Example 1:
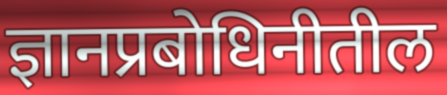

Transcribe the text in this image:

ज्ञानप्रबोधिनीतील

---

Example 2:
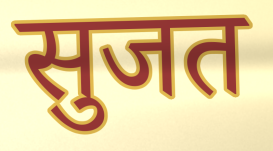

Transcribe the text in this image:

सुजत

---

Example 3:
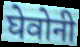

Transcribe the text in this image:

घेवोनी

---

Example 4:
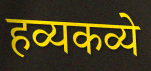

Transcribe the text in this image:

हव्यकव्ये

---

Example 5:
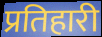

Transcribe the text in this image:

प्रतिहारी